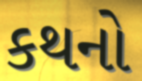
કથનો